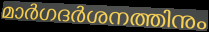
മാർഗദർശനത്തിനും